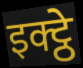
इक्ट्ठे